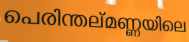
പെരിന്തല്മണ്ണയിലെ